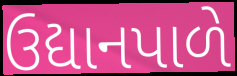
ઉદ્યાનપાળે